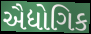
ઐદ્યોગિક